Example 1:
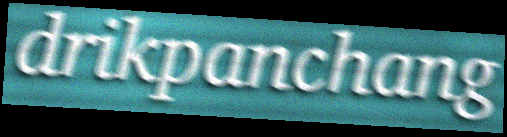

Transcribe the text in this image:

drikpanchang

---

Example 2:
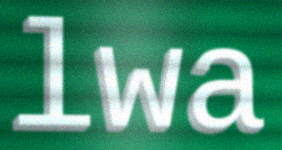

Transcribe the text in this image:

lwa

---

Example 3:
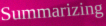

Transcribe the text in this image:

Summarizing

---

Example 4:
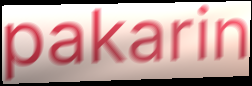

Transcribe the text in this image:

pakarin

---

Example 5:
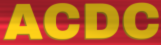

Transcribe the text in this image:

ACDC